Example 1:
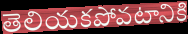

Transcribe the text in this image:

తెలియకపోవటానికి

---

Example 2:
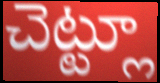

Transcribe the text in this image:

చెట్ట్లూ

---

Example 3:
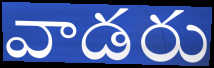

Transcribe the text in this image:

వాడరు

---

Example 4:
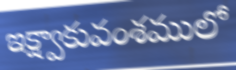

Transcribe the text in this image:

ఇక్ష్వాకువంశములో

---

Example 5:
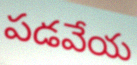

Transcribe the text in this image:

పడవేయ